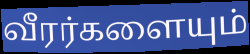
வீரர்களையும்